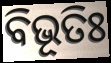
ବିଭୂତିଃ